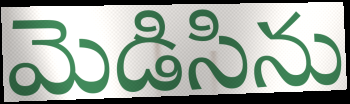
మెడిసిను